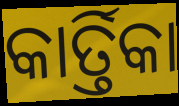
କାର୍ତ୍ତିକା